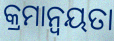
କ୍ରମାନ୍ବୟତା